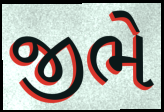
જીભે